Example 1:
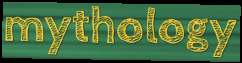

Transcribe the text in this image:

mythology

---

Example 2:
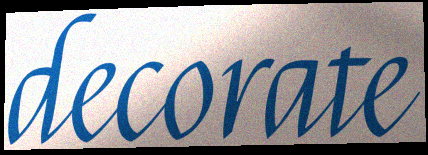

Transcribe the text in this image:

decorate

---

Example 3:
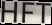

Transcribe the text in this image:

HFT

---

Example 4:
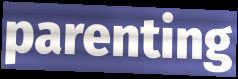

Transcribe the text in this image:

parenting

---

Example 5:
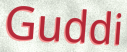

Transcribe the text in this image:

Guddi